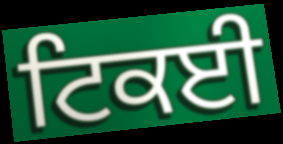
ਟਿਕਈ